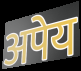
अपेय